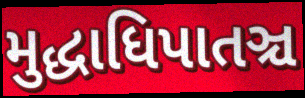
મુદ્ધાધિપાતઞ્ચ